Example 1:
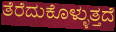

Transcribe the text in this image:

ತೆರೆದುಕೊಳ್ಳುತ್ತದೆ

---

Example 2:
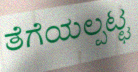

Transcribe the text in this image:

ತೆಗೆಯಲ್ಪಟ್ಟ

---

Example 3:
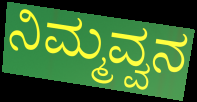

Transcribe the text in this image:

ನಿಮ್ಮವ್ವನ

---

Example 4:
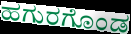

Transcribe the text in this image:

ಹಗುರಗೊಂಡ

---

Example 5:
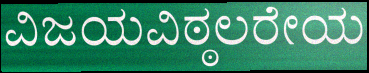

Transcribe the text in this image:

ವಿಜಯವಿಠ್ಠಲರೇಯ